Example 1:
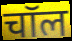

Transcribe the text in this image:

चॉल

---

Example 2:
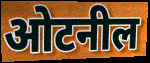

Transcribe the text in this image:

ओटनील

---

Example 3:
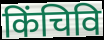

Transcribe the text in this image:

किंचिवि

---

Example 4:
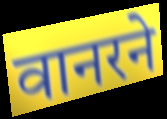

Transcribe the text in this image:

वानरने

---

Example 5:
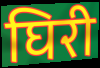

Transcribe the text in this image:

घिरी